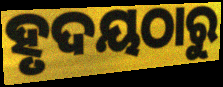
ହୃଦୟଠାରୁ